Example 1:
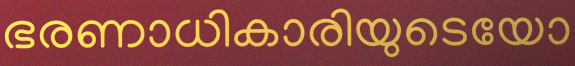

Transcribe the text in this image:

ഭരണാധികാരിയുടെയോ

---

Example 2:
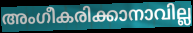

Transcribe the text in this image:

അംഗീകരിക്കാനാവില്ല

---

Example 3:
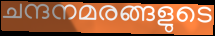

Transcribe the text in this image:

ചന്ദനമരങ്ങളുടെ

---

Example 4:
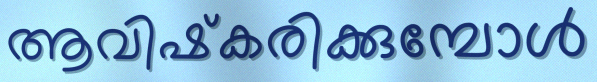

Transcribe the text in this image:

ആവിഷ്‌കരിക്കുമ്പോൾ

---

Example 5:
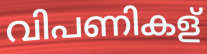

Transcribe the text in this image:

വിപണികള്